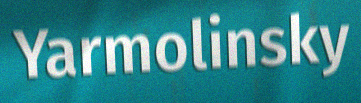
Yarmolinsky